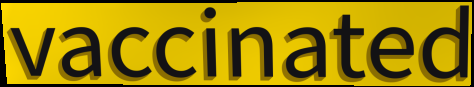
vaccinated